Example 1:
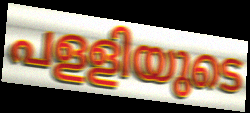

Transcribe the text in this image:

പളളിയുടെ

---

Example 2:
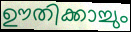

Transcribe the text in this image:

ഊതിക്കാച്ചും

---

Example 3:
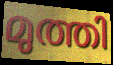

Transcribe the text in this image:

മുത്തി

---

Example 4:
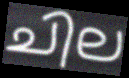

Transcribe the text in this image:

ചില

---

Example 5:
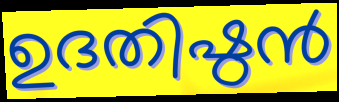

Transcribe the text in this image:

ഉദതിഷ്ഠൻ